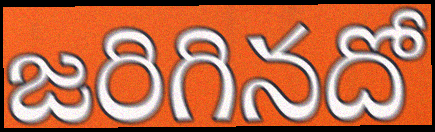
జరిగినదో